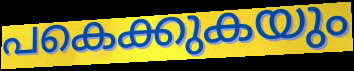
പകെക്കുകയും